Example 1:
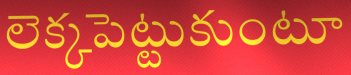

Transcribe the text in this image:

లెక్కపెట్టుకుంటూ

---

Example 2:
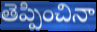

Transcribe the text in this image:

తెప్పించినా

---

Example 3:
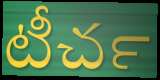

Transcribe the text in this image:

టీచర్‍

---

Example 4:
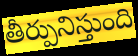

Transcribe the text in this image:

తీర్పునిస్తుంది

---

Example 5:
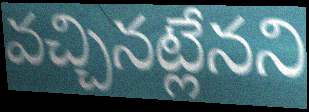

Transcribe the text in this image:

వచ్చినట్లేనని